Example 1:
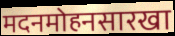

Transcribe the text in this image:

मदनमोहनसारखा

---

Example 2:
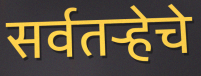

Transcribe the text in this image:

सर्वतऱ्हेचे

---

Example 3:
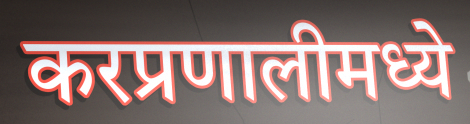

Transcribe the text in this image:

करप्रणालीमध्ये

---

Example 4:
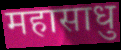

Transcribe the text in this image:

महासाधु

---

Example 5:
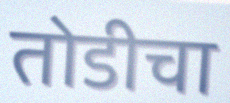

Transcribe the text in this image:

तोडीचा